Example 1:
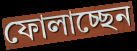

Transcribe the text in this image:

ফোলাচ্ছেন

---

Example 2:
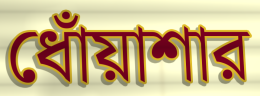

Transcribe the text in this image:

ধোঁয়াশার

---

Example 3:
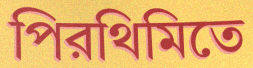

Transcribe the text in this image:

পিরথিমিতে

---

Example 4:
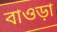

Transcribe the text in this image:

বাওড়া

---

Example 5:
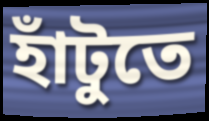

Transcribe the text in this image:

হাঁটুতে